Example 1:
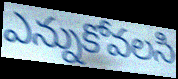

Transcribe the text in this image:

ఎన్నుకోవలసి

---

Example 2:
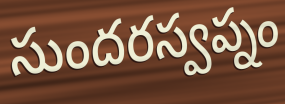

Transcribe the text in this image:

సుందరస్వప్నం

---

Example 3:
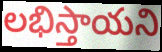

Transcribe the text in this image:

లభిస్తాయని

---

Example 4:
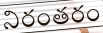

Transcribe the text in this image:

నిరంతరం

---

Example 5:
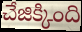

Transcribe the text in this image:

చేజిక్కింది